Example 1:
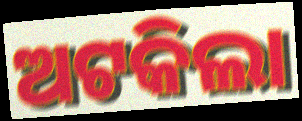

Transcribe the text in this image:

ଅଟକିଲା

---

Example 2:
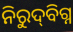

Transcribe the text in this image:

ନିରୁଦ୍‍ବିଗ୍ନ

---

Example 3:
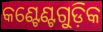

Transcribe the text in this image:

କଣ୍ଟେଣ୍ଟଗୁଡ଼ିକ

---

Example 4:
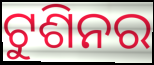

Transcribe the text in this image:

ଟୁଶିନର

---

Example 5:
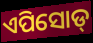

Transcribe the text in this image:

ଏପିସୋଡ୍